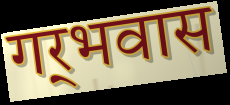
गर्भवास